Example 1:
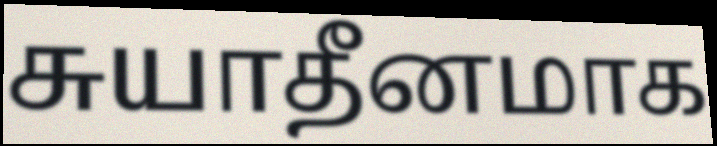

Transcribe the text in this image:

சுயாதீனமாக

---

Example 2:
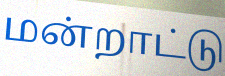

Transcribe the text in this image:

மன்றாட்டு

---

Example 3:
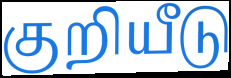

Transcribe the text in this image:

குறியீடு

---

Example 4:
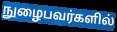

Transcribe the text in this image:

நுழைபவர்களில்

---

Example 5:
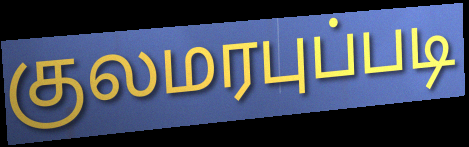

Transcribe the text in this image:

குலமரபுப்படி